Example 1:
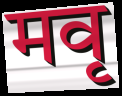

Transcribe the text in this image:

मवृ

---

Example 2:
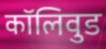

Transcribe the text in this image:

कॉलिवुड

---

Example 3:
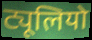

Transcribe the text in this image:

ट्यूलियो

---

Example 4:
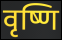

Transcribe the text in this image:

वृष्णि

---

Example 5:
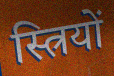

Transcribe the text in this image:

स्‍त्रियों